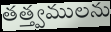
తత్త్వములను